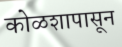
कोळशापासून